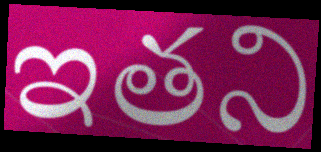
ఇతని